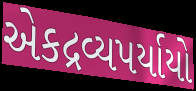
એકદ્રવ્યપર્યાયો